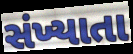
સંખ્યાતા